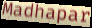
Madhapar